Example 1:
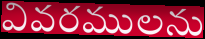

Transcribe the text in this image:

వివరములను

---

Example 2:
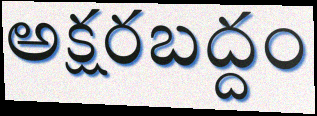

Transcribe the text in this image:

అక్షరబద్దం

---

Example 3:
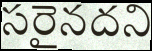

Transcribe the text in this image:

సరైనదని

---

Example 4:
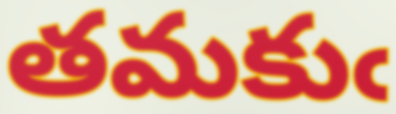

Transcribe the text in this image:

తమకుఁ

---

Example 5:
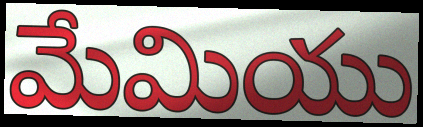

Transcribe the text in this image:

మేమియు